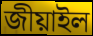
জীয়াইল